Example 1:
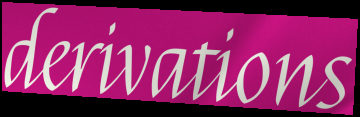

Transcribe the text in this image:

derivations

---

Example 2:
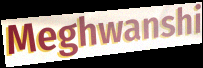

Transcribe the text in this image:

Meghwanshi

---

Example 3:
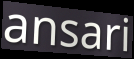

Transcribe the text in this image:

ansari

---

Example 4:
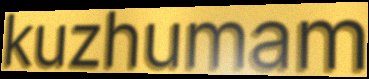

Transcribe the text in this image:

kuzhumam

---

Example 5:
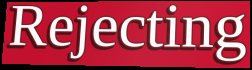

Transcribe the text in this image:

Rejecting